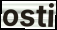
osti